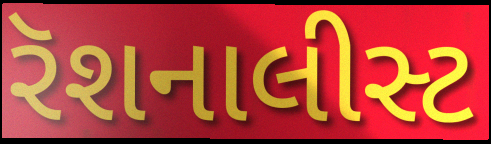
રૅશનાલીસ્ટ